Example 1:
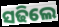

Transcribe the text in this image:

ସଢିଲେ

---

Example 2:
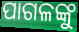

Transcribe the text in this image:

ପାଗଳଙ୍କୁ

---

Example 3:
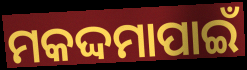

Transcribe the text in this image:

ମକଦ୍ଦମାପାଇଁ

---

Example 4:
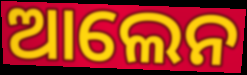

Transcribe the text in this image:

ଆଲେନ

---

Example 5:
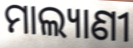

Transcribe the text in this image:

ମାଲ୍ୟାଣୀ